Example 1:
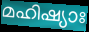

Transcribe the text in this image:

മഹിഷ്യാഃ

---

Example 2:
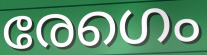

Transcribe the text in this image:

രേഗെം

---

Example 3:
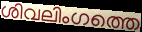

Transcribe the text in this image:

ശിവലിംഗത്തെ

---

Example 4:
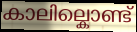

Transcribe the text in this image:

കാലില്കൊണ്ട്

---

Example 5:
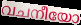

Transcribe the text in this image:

വചനീയോ